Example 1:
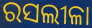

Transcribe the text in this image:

ରସଲୀଳା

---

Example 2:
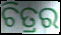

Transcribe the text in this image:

ଚିତ୍ରର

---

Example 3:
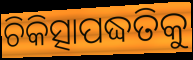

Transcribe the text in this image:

ଚିକିତ୍ସାପଦ୍ଧତିକୁ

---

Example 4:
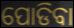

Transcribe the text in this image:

ପୋଡିବା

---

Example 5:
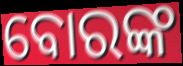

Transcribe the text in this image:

ବୋରଙ୍କ